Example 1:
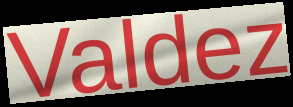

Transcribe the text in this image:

Valdez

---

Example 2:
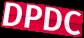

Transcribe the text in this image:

DPDC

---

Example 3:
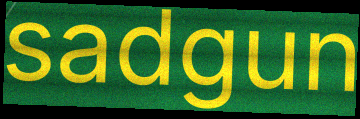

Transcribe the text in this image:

sadgun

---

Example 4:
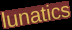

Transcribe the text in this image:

lunatics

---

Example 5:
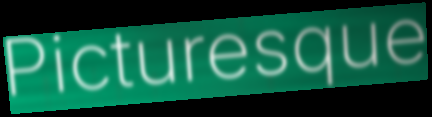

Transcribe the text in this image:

Picturesque